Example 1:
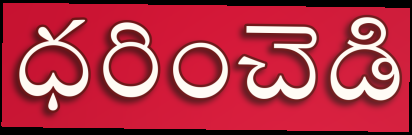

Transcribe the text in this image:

ధరించెడి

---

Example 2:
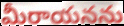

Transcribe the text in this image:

మీరాయనను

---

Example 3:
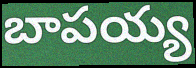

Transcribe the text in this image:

బాపయ్య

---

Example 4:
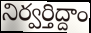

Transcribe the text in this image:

నిర్వర్తిద్దాం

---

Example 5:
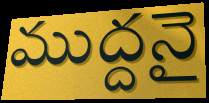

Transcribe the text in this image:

ముద్దనై